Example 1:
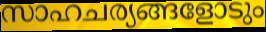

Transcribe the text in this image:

സാഹചര്യങ്ങളോടും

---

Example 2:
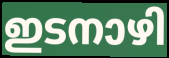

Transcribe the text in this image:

ഇടനാഴി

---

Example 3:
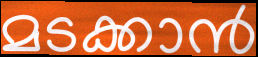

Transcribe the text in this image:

മടക്കാൻ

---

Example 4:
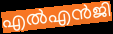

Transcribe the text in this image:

എൽഎൻജി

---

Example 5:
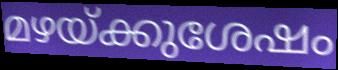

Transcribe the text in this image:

മഴയ്ക്കുശേഷം